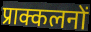
प्राक्कलनों